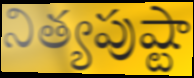
నిత్యపుష్టా